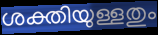
ശക്തിയുള്ളതും